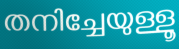
തനിച്ചേയുള്ളൂ